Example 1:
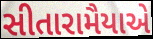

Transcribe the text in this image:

સીતારામૈયાએ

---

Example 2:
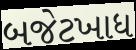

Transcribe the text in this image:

બજેટખાધ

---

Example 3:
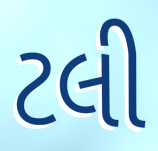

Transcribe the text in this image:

ટલી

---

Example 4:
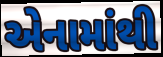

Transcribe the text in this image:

એનામાંથી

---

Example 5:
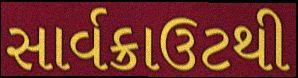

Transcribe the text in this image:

સાર્વક્રાઉટથી